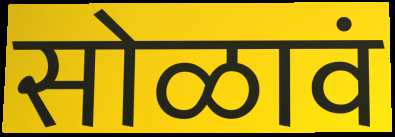
सोळावं